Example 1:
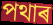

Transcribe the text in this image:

পথাৰ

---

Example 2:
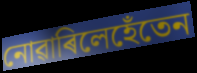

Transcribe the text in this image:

নোৱাৰিলেহেঁতেন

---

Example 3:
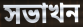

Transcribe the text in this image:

সভাখন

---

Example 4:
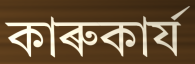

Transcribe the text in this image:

কাৰুকাৰ্য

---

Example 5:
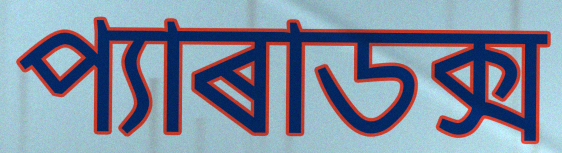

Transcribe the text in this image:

প্যাৰাডক্স